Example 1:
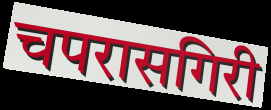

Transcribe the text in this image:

चपरासगिरी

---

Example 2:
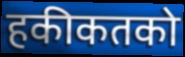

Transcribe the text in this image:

हकीकतको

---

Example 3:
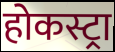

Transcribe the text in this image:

होकस्ट्रा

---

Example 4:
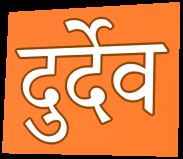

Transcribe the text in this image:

दुर्देव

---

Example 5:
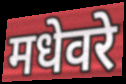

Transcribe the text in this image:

मधेवरे